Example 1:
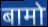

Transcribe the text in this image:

बामो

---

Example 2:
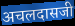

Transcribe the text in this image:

अचलदासजी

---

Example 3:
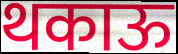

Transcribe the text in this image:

थकाऊ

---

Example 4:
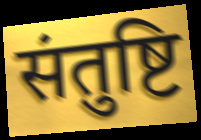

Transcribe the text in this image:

संतुष्टि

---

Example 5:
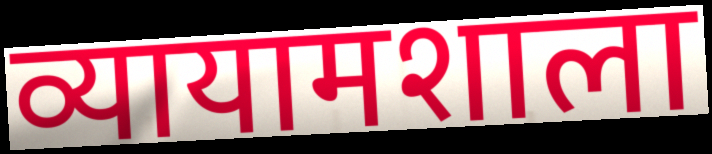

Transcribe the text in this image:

व्यायामशाला